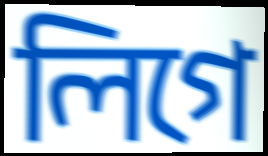
লিগে